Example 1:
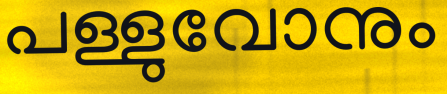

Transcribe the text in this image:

പള്ളുവോനും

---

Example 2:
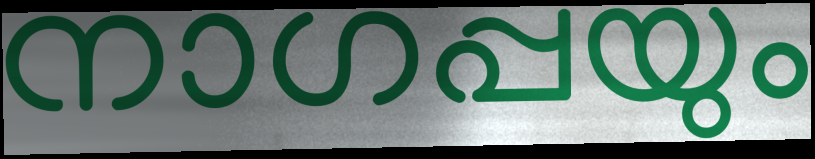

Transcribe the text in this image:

നാഗപ്പയും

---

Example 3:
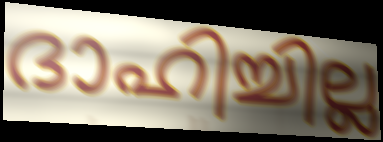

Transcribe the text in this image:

ദാഹിച്ചില്ല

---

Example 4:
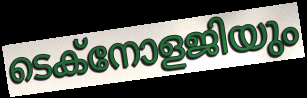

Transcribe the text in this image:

ടെക്നോളജിയും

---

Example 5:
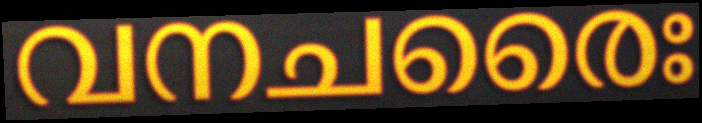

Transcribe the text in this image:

വനചരൈഃ